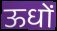
ऊधों